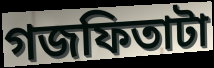
গজফিতাটা